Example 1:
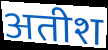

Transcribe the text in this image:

अतीश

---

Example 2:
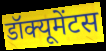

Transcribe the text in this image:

डॉक्यूमेंटस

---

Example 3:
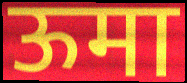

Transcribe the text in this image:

ऊमा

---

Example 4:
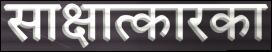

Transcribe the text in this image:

साक्षात्कारका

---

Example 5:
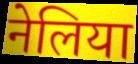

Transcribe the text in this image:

नेलिया